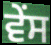
ਵੇਂਸ